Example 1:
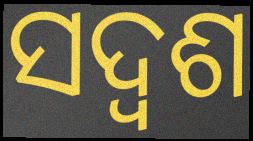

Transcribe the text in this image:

ସଦ୍ଵଶ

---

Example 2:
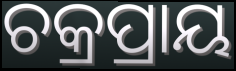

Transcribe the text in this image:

ଚକ୍ରପ୍ରାୟ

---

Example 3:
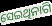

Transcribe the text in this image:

ସେଇଥିନାଗି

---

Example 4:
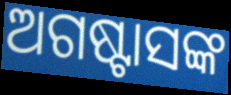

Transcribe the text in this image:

ଅଗଷ୍ଟାସଙ୍କ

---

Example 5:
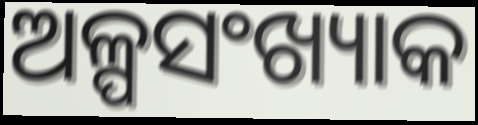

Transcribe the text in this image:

ଅଳ୍ପସଂଖ୍ୟାକ